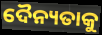
ଦୈନ୍ୟତାକୁ